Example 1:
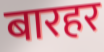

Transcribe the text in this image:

बारहर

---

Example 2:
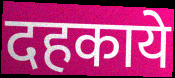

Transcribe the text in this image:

दहकाये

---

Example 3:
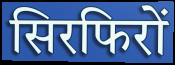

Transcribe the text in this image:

सिरफिरों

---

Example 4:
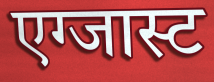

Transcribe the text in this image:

एग्जास्ट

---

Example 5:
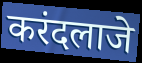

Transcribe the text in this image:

करंदलाजे